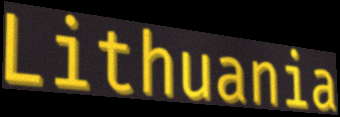
Lithuania